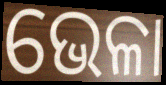
ଭେଳା